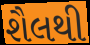
શૈલથી